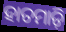
ହାତମାଡ଼ି